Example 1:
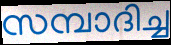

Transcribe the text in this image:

സമ്പാദിച്ച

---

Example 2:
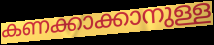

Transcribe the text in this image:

കണക്കാക്കാനുള്ള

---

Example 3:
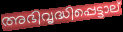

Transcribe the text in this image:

അഭിവൃദ്ധിപ്പെട്ടാല്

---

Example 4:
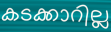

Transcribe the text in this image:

കടക്കാറില്ല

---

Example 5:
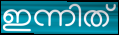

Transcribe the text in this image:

ഇന്നിത്